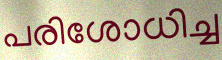
പരിശോധിച്ച